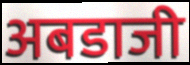
अबडाजी